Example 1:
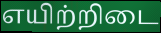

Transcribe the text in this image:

எயிற்றிடை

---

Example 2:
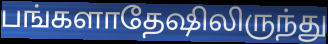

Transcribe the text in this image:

பங்களாதேஷிலிருந்து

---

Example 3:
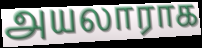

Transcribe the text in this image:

அயலாராக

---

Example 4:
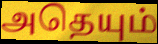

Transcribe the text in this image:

அதெயும்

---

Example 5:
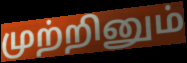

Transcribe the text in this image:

முற்றினும்